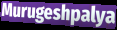
Murugeshpalya